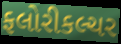
ફલોરીકલ્ચર